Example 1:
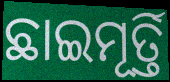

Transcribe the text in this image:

ଛାଇମୂର୍ତ୍ତି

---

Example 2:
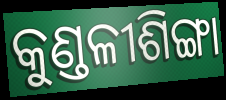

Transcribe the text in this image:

କୁଣ୍ଡଳୀଶିଙ୍ଗା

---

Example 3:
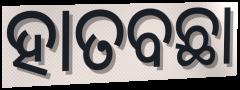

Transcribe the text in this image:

ହାତବଛା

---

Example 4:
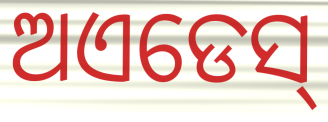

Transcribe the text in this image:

ଅଏଡେସ୍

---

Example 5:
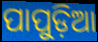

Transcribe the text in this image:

ପାପୁଡ଼ିଆ